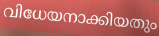
വിധേയനാക്കിയതും